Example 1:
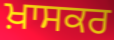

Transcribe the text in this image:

ਖ਼ਾਸਕਰ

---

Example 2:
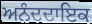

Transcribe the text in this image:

ਅਨੰਦਦਾਇਕ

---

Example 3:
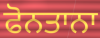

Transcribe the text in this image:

ਫੋਨਤਾਨਾ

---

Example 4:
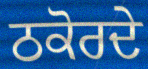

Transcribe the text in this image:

ਠਕੋਰਦੇ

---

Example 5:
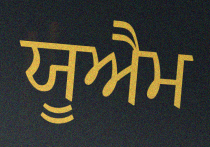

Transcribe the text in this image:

ਯੂਐਮ